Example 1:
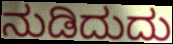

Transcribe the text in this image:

ನುಡಿದುದು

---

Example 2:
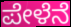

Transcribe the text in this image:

ಪೇಳೆನೆ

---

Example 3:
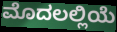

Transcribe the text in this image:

ಮೊದಲಲ್ಲಿಯೆ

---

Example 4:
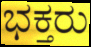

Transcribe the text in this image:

ಭಕ್ತರು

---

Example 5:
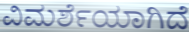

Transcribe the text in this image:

ವಿಮರ್ಶೆಯಾಗಿದೆ